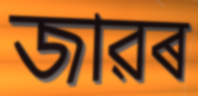
জাৱৰ